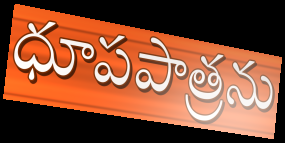
ధూపపాత్రను